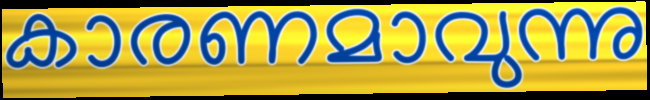
കാരണമാവുന്നു